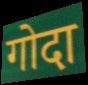
गोदा